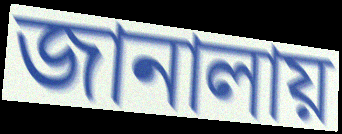
জানালায়